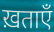
ख़ताएँ